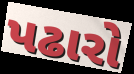
પઢારો